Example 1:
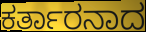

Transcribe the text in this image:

ಕರ್ತಾರನಾದ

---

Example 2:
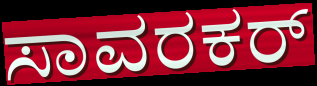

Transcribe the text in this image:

ಸಾವರಕರ್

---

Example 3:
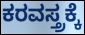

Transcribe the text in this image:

ಕರವಸ್ತ್ರಕ್ಕೆ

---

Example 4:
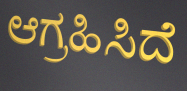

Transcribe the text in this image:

ಆಗ್ರಹಿಸಿದೆ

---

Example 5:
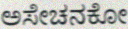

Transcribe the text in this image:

ಅಸೇಚನಕೋ